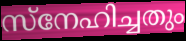
സ്നേഹിച്ചതും